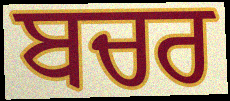
ਬਚਰ